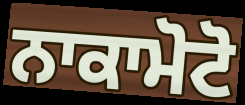
ਨਾਕਾਮੋਟੋ